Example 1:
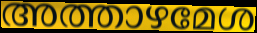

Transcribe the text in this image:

അത്താഴമേശ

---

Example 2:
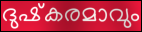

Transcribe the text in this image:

ദുഷ്‌കരമാവും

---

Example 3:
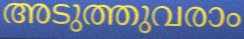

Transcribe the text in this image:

അടുത്തുവരാം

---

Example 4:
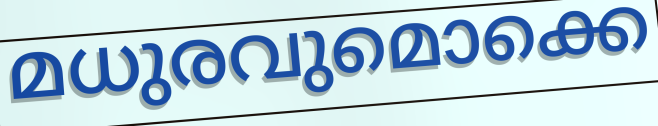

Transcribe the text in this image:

മധുരവുമൊക്കെ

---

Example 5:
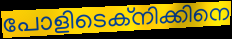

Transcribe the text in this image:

പോളിടെക്നിക്കിനെ